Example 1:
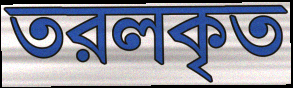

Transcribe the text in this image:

তরলকৃত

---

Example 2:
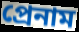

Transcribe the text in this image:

প্রেনাম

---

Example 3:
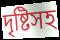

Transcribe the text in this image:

দৃষ্টিসহ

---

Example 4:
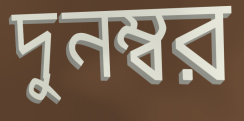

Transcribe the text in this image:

দুনম্বর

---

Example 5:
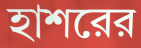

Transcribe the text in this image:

হাশরের